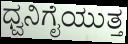
ಧ್ವನಿಗೈಯುತ್ತ